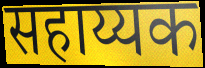
सहाय्यक